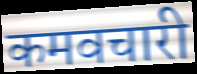
कमवचारी